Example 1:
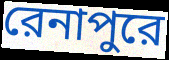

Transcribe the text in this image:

রেনাপুরে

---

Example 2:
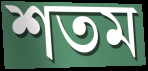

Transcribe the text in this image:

শতম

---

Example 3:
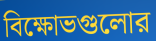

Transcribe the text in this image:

বিক্ষোভগুলোর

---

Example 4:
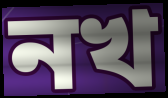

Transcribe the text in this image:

নখ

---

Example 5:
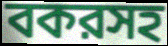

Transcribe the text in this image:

বকরসহ